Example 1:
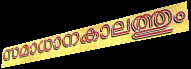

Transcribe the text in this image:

സമാധാനകാലത്തും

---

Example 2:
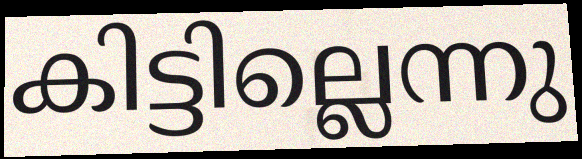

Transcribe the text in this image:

കിട്ടില്ലെന്നു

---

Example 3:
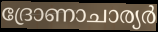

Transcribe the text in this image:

ദ്രോണാചാര്യർ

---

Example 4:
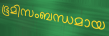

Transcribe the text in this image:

ഭൂമിസംബന്ധമായ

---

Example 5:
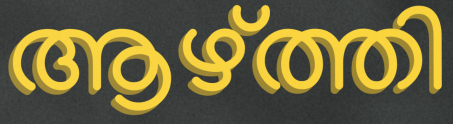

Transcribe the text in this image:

ആഴ്ത്തി